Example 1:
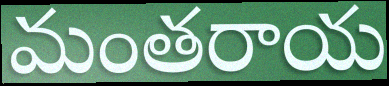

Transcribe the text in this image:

మంతరాయ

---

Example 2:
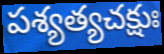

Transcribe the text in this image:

పశ్యత్యచక్షుః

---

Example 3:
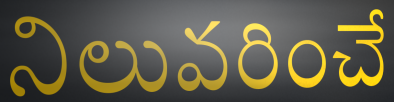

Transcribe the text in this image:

నిలువరించే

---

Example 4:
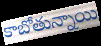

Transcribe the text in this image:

కాబోతున్నాయి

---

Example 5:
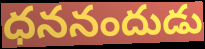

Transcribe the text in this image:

ధననందుడు